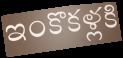
ఇంకొకళ్లకి